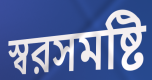
স্বরসমষ্টি